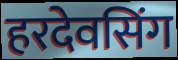
हरदेवसिंग